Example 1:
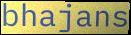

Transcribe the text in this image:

bhajans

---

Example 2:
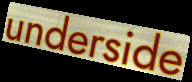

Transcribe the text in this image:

underside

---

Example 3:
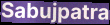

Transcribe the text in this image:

Sabujpatra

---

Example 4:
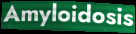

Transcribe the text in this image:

Amyloidosis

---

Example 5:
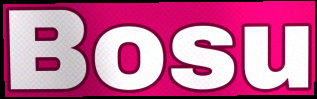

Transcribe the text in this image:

Bosu